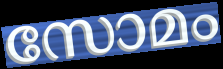
സോമം